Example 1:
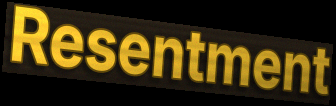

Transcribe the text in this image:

Resentment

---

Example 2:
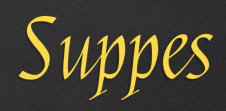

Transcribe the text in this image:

Suppes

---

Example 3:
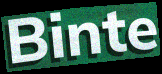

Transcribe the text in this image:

Binte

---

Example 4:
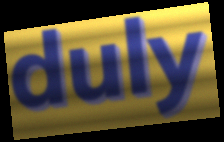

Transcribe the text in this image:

duly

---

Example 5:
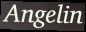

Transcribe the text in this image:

Angelin